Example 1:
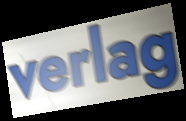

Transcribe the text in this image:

verlag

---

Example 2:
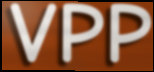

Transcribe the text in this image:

VPP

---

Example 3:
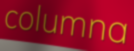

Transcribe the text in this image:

columna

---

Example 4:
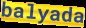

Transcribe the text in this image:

balyada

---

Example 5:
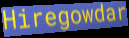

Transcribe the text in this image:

Hiregowdar